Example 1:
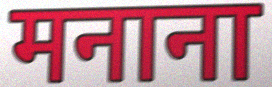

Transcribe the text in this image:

मनाना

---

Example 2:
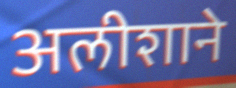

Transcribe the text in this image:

अलीशाने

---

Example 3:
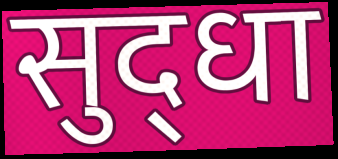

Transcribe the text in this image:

सुद्धा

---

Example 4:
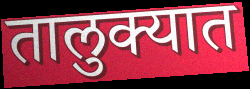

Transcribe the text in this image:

तालुक्यात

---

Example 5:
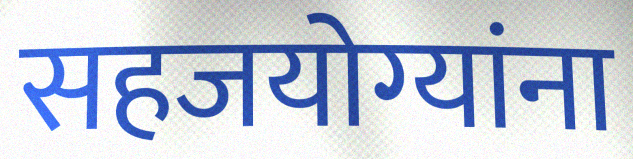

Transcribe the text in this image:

सहजयोग्यांना